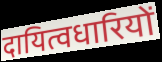
दायित्वधारियों